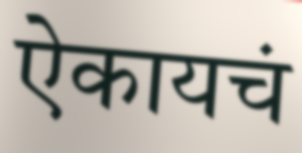
ऐकायचं